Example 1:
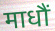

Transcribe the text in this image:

माधौं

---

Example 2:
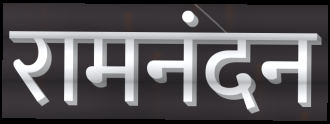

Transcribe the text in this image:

रामनंदन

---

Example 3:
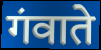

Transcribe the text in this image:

गंवाते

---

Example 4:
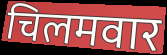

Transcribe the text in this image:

चिलमवार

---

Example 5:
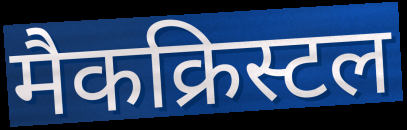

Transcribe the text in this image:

मैकक्रिस्टल